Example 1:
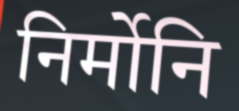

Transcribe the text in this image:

निर्मोनि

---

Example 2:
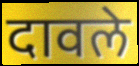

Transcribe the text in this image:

दावले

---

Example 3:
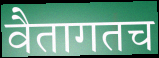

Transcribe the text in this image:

वैतागतच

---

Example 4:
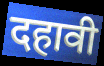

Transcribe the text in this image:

दहावी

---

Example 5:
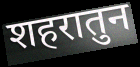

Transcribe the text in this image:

शहरातुन